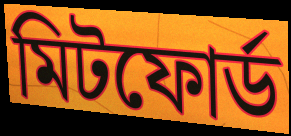
মিটফোর্ড